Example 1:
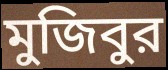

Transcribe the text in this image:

মুজিবুর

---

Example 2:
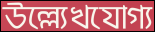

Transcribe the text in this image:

উল্ল্যেখযোগ্য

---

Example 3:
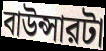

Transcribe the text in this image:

বাউন্সারটা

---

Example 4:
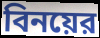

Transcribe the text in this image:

বিনয়ের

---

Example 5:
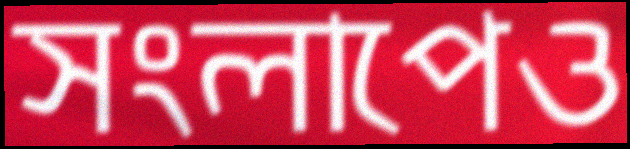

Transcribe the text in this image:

সংলাপেও